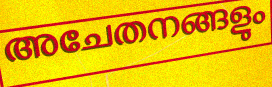
അചേതനങ്ങളും